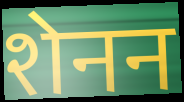
शेनन